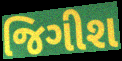
જિગીશ